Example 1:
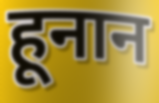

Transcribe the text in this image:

हूनान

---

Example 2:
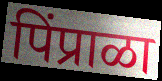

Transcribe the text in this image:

पिंप्राळा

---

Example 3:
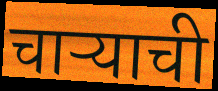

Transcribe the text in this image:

चाऱ्याची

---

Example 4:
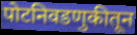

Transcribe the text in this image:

पोटनिवडणुकीतून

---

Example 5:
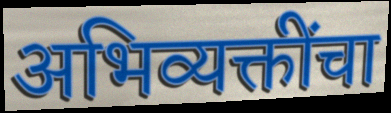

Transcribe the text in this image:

अभिव्यक्तींचा